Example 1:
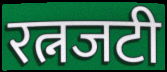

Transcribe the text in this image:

रत्नजटी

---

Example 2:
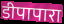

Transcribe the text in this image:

डीपापारा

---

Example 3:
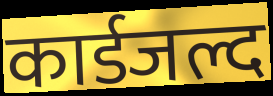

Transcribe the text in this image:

कार्डजल्द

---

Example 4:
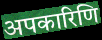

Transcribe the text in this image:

अपकारिणि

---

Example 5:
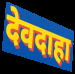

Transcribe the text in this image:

देवदाहा